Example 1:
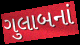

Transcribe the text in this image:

ગુલાબનાં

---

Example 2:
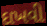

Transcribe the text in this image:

દાખવી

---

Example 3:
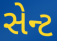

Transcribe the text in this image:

સેન્ટ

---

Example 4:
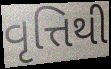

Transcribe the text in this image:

વૃત્તિથી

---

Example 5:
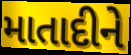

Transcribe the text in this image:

માતાદીને